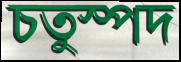
চতুস্পদ